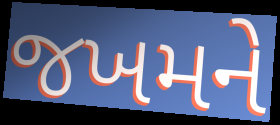
જખમને